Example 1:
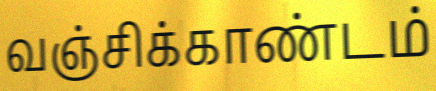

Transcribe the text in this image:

வஞ்சிக்காண்டம்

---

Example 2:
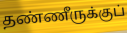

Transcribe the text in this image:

தண்ணீருக்குப்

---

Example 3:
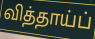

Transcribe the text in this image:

வித்தாய்ப்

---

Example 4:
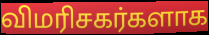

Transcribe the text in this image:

விமரிசகர்களாக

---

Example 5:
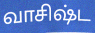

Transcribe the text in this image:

வாசிஷ்ட